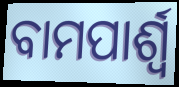
ବାମପାର୍ଶ୍ଵ